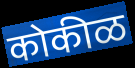
कोकीळ